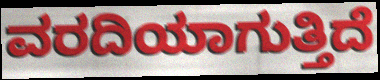
ವರದಿಯಾಗುತ್ತಿದೆ